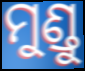
ମୁଣ୍ଡୁ